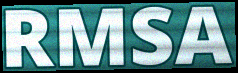
RMSA